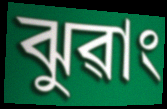
ঝুৱাং